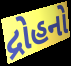
દ્રોહનો